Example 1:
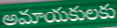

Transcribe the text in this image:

అమాయకులకు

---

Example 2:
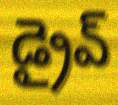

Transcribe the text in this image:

డ్రైవ్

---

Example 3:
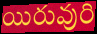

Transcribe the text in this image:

యిరువురి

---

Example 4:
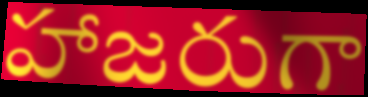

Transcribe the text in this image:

హాజరుగా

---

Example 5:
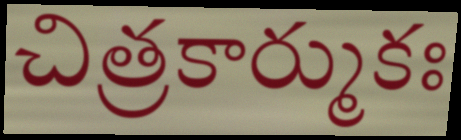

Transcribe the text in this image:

చిత్రకార్ముకః